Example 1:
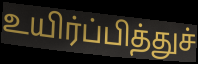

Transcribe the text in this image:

உயிர்ப்பித்துச்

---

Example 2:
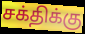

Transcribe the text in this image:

சக்திக்கு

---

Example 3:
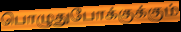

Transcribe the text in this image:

பொழுதுபோக்குக்கும்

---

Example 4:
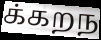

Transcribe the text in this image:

க்கறந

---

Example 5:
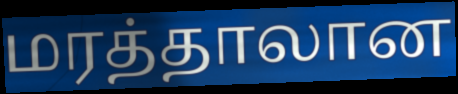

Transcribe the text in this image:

மரத்தாலான